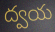
ద్వయ